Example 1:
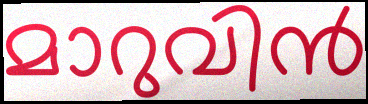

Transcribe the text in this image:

മാറുവിൻ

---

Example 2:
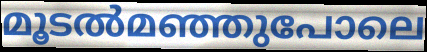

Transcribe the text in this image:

മൂടൽമഞ്ഞുപോലെ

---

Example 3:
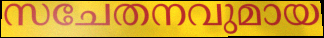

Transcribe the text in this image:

സചേതനവുമായ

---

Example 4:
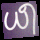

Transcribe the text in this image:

ധീ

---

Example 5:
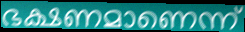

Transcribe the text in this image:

ഭക്ഷണമാണെന്ന്